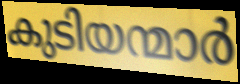
കുടിയന്മാർ